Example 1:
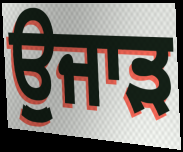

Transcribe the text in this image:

ਉੁਜਾੜ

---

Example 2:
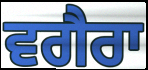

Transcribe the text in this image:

ਵਗੈਰਾ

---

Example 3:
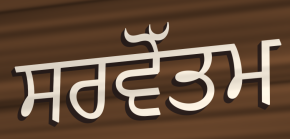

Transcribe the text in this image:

ਸਰਵੋੱਤਮ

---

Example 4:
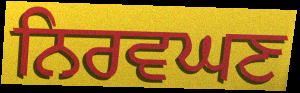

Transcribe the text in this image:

ਨਿਰਵਘਣ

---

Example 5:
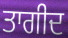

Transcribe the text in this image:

ਤਾਗੀਦ